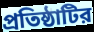
প্রতিষ্ঠাটির